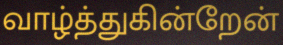
வாழ்த்துகின்றேன்